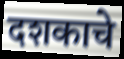
दशकाचे